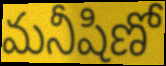
మనీషిణో